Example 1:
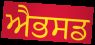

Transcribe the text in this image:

ਐਭਸਡ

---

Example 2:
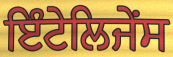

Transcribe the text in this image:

ਇੰਟੇਲਿਜੇਂਸ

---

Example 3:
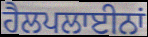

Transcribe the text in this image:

ਹੈਲਪਲਾਈਨਾਂ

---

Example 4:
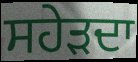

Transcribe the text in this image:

ਸਹੇੜਦਾ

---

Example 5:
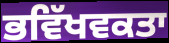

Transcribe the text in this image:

ਭਵਿੱਖਵਕਤਾ